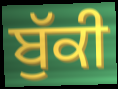
ਬੁੱਕੀ